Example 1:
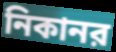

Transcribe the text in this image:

নিকানর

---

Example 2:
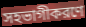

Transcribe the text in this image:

সহভাগীকরণে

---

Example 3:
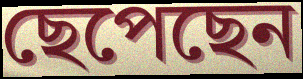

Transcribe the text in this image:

ছেপেছেন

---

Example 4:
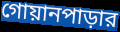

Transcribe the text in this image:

গোয়ানপাড়ার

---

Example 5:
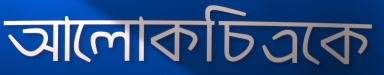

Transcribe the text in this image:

আলোকচিত্রকে